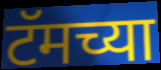
टॅमच्या